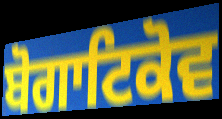
ਬੋਗਾਟਿਕੋਵ